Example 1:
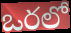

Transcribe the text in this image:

ఒరలో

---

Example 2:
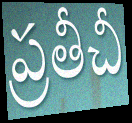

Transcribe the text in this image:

ప్రతీచీ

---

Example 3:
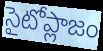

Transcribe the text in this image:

సైటోప్లాజం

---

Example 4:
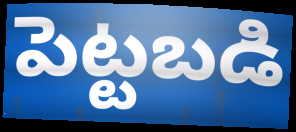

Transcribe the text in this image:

పెట్టబడి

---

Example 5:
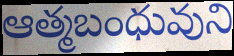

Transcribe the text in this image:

ఆత్మబంధువుని